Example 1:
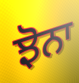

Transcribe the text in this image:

ਝੋਨਾ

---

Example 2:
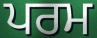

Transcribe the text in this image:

ਪਰਮ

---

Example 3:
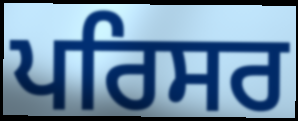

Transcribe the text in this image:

ਪਰਿਸਰ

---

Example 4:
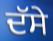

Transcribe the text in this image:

ਦੱਸੇ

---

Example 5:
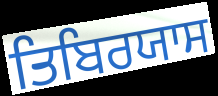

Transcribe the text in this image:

ਤਿਬਿਰਯਾਸ